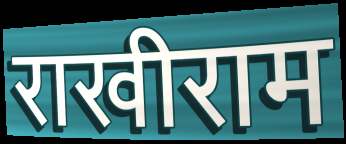
राखीराम